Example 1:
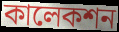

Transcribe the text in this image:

কালেকশন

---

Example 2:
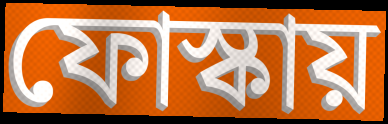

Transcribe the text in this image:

ফোস্কায়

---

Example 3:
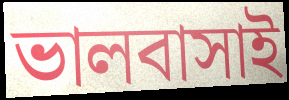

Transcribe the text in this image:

ভালবাসাই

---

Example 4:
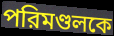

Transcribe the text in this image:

পরিমণ্ডলকে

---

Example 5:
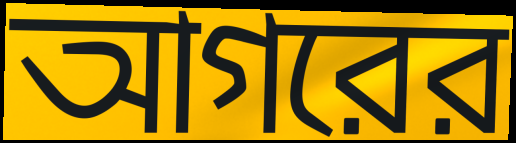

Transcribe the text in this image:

আগরের